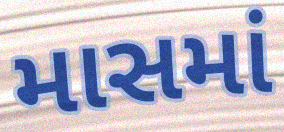
માસમાં